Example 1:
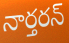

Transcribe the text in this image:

నార్తరన్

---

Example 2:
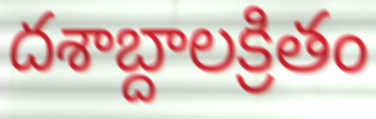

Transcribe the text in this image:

దశాబ్దాలక్రితం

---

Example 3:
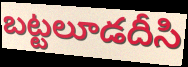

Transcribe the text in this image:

బట్టలూడదీసి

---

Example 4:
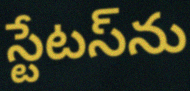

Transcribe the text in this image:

స్టేటస్‌ను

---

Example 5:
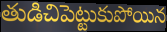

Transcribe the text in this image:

తుడిచిపెట్టుకుపోయిన